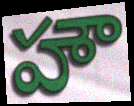
హౌ